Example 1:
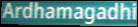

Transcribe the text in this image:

Ardhamagadhi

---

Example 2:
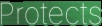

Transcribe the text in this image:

Protects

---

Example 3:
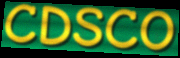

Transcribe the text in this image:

CDSCO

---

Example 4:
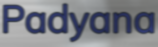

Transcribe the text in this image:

Padyana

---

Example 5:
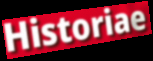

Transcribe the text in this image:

Historiae